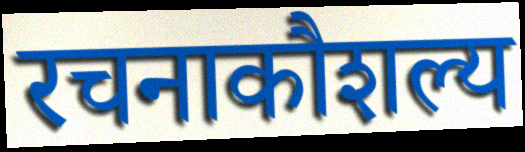
रचनाकौशल्य